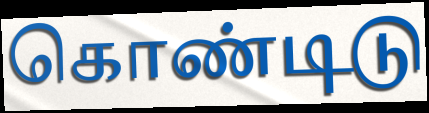
கொண்டிடு